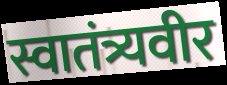
स्वातंत्र्यवीर